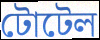
টোটেল